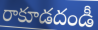
రాకూడదండీ